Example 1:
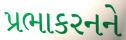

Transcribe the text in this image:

પ્રભાકરનને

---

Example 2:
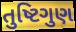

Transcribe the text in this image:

તુષ્ટિગુણ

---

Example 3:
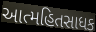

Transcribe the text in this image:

આત્મહિતસાધક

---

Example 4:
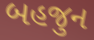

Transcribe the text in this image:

બહજુન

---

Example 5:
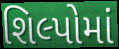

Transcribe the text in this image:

શિલ્પોમાં